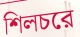
শিলচরে